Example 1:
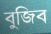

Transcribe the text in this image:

বুজিব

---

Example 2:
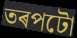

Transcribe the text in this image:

তৰপটো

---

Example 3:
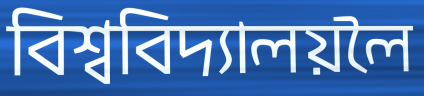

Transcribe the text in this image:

বিশ্ববিদ্যালয়লৈ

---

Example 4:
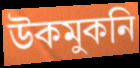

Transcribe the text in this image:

উকমুকনি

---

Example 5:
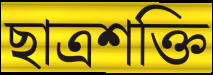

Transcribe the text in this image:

ছাত্ৰশক্তি